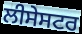
ਲੀਸੇਸਟਰ